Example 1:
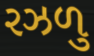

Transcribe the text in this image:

રઝળુ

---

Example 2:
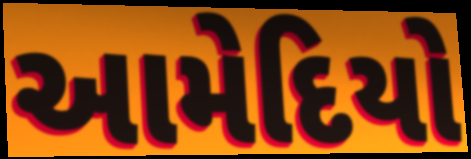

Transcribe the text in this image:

આમેદિયો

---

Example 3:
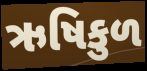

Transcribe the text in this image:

ઋષિકુળ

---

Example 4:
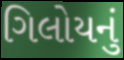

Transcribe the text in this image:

ગિલોયનું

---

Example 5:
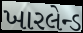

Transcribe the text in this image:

ખારલેન્ડ